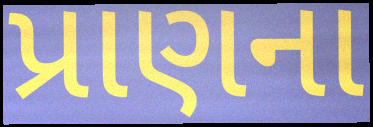
પ્રાણના